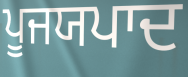
ਪੂਜਯਪਾਦ